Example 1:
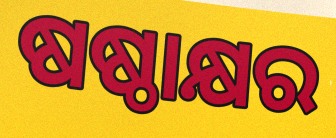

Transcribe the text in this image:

ଷଷ୍ଠାକ୍ଷର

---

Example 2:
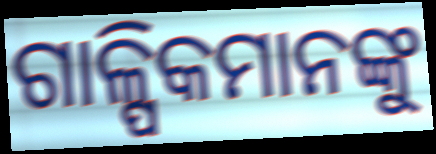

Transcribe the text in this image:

ଗାଳ୍ପିକମାନଙ୍କୁ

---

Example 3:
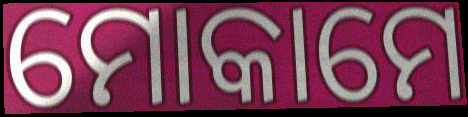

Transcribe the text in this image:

ମୋକାମେ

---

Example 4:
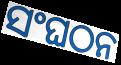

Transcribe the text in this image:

ସଂଘଠନ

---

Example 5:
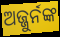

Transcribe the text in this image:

ଅଜ୍ଜୁର୍ନଙ୍କ